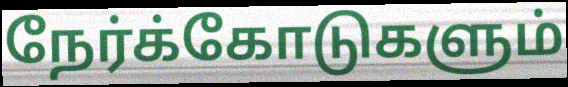
நேர்க்கோடுகளும்